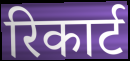
रिकार्ट